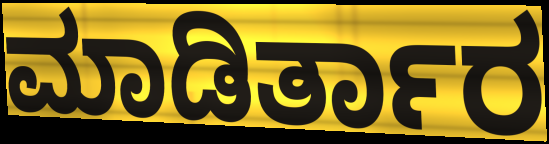
ಮಾಡಿರ್ತಾರ